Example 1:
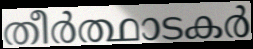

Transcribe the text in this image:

തീർത്ഥാടകർ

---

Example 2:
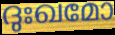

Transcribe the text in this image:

ദുഃഖമോ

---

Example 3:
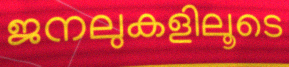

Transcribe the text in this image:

ജനലുകളിലൂടെ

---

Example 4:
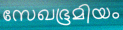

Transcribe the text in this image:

സേഖഭൂമിയം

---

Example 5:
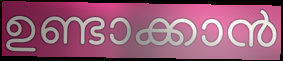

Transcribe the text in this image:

ഉണ്ടാക്കാൻ